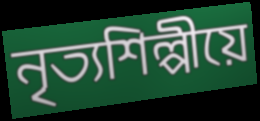
নৃত্যশিল্পীয়ে